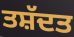
ਤਸ਼ੱਦਤ